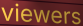
viewers